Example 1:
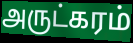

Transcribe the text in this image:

அருட்கரம்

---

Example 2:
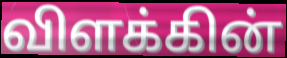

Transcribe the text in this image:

விளக்கின்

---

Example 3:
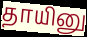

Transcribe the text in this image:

தாயினு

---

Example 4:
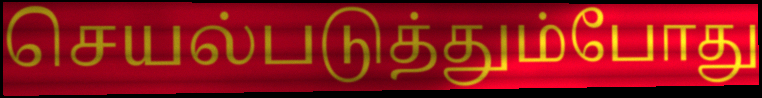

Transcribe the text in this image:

செயல்படுத்தும்போது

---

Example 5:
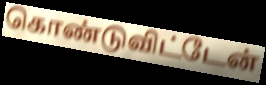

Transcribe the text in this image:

கொண்டுவிட்டேன்